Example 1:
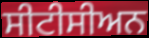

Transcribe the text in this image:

ਸੀਟੀਸੀਅਨ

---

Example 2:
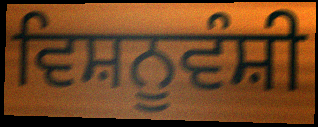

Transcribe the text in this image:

ਵਿਸ਼ਨੂਵੰਸ਼ੀ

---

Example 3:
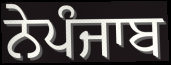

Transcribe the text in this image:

ਨੇਪੰਜਾਬ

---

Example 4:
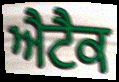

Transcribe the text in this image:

ਐਟੈਕ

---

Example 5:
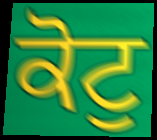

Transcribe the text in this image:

ਕੋਟੁ